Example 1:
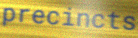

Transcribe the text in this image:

precincts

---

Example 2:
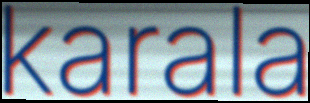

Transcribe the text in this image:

karala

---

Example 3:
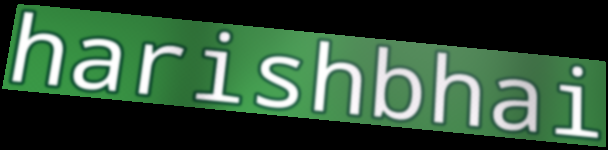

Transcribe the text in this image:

harishbhai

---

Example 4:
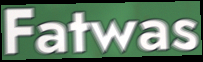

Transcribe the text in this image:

Fatwas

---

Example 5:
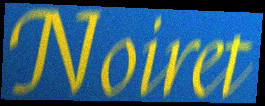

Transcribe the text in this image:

Noiret